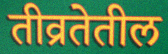
तीव्रतेतील